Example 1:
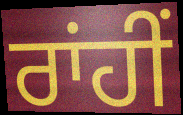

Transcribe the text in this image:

ਰਾਂਹੀਂ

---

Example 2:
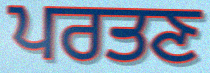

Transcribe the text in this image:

ਪਰਤਣ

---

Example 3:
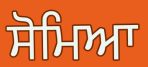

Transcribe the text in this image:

ਸੋਮਿਆ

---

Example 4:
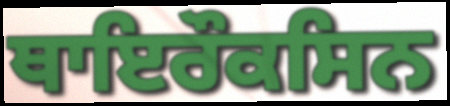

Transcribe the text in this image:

ਥਾਇਰੌਕਸਿਨ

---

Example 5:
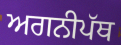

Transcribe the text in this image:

ਅਗਨੀਪੱਥ